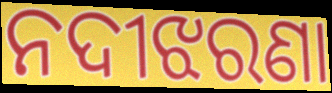
ନଦୀଝରଣା